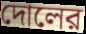
দোলের